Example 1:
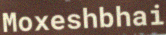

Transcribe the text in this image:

Moxeshbhai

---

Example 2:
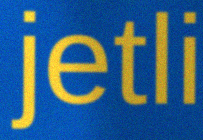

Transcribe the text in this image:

jetli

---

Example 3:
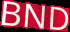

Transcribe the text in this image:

BND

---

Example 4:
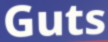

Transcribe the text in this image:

Guts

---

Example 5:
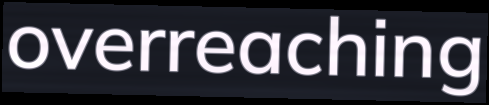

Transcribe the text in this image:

overreaching